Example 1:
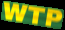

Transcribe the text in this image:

WTP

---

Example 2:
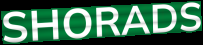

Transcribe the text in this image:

SHORADS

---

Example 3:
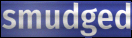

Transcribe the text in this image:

smudged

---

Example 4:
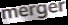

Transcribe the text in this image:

merger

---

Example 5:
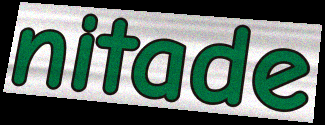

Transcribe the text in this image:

nitade